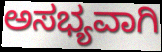
ಅಸಭ್ಯವಾಗಿ